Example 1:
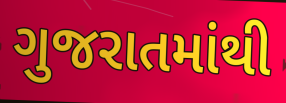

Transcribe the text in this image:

ગુજરાતમાંથી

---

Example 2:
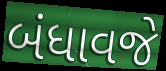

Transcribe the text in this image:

બંધાવજે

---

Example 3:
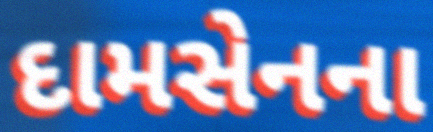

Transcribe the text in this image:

દામસેનના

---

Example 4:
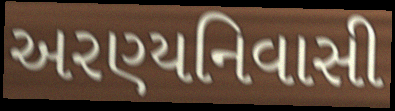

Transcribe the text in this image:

અરણ્યનિવાસી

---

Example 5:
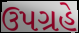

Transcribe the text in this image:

ઉપગ્રહે